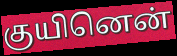
குயினென்